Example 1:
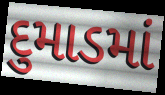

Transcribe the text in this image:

દુમાડમાં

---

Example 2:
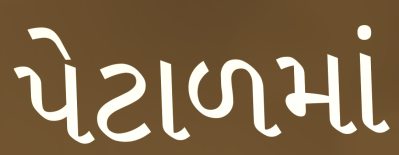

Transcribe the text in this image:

પેટાળમાં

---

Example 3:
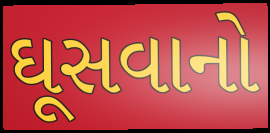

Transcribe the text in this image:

ઘૂસવાનો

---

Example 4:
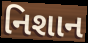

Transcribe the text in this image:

નિશાન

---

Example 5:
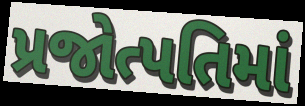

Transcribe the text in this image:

પ્રજોત્પતિમાં